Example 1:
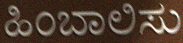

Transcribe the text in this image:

ಹಿಂಬಾಲಿಸು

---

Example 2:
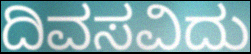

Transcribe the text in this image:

ದಿವಸವಿದು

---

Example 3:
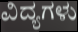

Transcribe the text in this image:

ವಿದ್ಯಗಳು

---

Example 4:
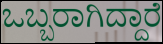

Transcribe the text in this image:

ಒಬ್ಬರಾಗಿದ್ದಾರೆ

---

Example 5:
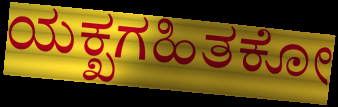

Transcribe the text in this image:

ಯಕ್ಖಗಹಿತಕೋ